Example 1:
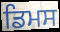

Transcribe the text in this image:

ਡਿਮਸ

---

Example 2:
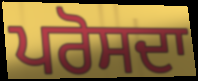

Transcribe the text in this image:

ਪਰੋਸਦਾ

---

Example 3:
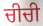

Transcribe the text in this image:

ਚੀਚੀ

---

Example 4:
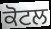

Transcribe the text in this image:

ਕੋਟਲ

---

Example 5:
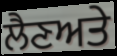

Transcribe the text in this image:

ਲੈਣਅਤੇ